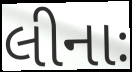
લીનાઃ